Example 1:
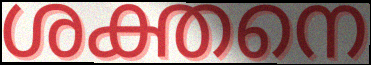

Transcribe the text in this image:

ശക്തനെ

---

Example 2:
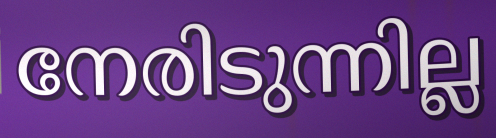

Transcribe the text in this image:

നേരിടുന്നില്ല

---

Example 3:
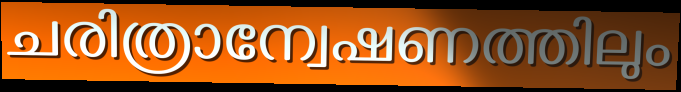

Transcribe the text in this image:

ചരിത്രാന്വേഷണത്തിലും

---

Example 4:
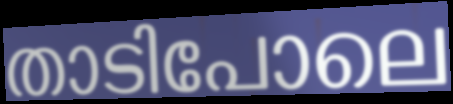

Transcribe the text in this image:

താടിപോലെ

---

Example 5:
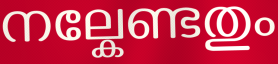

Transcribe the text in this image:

നല്കേണ്ടതും